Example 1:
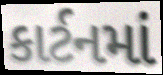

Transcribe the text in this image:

કાર્ટનમાં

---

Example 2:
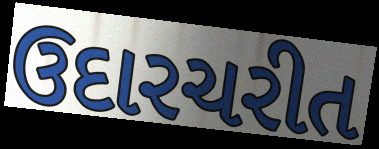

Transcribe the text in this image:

ઉદારચરીત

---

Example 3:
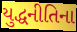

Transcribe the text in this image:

યુદ્ધનીતિના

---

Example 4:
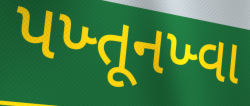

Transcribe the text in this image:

પખ્તૂનખ્વા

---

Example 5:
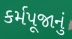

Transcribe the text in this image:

કર્મપૂજાનું